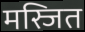
मस्जित